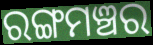
ରଙ୍ଗମଞ୍ଚର